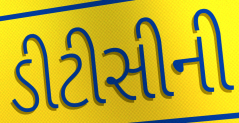
ડીટીસીની